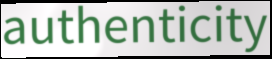
authenticity